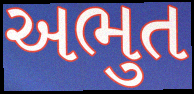
અભુત